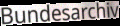
Bundesarchiv